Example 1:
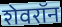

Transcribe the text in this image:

शेवरॉन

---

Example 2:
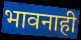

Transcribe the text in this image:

भावनाही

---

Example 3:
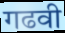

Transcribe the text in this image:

गढवी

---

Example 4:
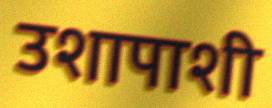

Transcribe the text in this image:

उशापाशी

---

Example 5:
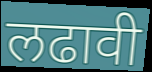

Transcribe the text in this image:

लढावी